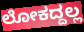
ಲೋಕದ್ದಲ್ಲ